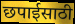
छपाईसाठी